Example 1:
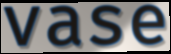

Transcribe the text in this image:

vase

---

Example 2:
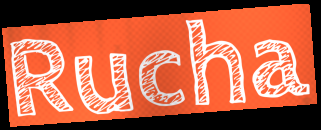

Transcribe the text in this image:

Rucha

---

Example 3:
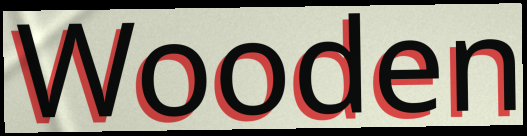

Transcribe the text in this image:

Wooden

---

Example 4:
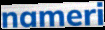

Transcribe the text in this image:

nameri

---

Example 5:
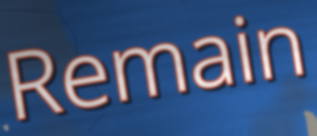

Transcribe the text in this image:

Remain